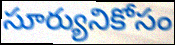
సూర్యునికోసం